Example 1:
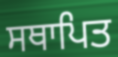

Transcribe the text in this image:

ਸਥਾਪਿਤ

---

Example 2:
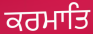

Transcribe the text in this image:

ਕਰਮਾਤਿ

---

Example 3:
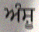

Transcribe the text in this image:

ਅੰਸ਼ੂ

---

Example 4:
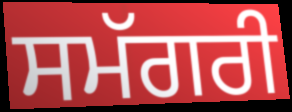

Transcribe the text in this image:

ਸਮੱਗਰੀ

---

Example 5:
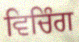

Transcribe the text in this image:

ਵਿਚਿੰਗ